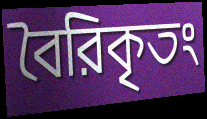
বৈরিকৃতং